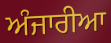
ਅੰਜਾਰੀਆ